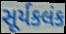
સૂર્યકલંક